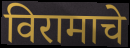
विरामाचे